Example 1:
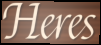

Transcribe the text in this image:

Heres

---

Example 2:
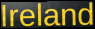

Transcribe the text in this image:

Ireland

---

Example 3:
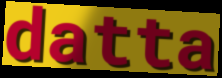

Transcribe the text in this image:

datta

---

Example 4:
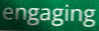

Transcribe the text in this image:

engaging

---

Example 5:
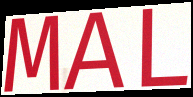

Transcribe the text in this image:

MAL